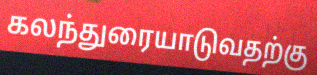
கலந்துரையாடுவதற்கு